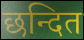
छन्दित